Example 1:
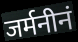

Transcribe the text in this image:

जर्मनीनं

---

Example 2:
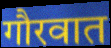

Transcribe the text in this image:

गौरवात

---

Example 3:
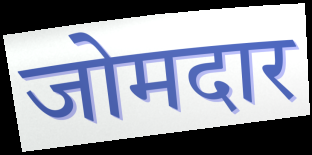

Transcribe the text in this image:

जोमदार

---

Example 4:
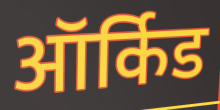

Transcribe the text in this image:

ऑर्किड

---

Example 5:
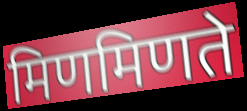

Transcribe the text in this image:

मिणमिणते